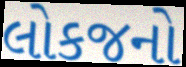
લોકજનો